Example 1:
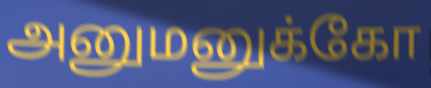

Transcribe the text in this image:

அனுமனுக்கோ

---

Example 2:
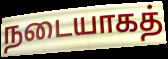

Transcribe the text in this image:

நடையாகத்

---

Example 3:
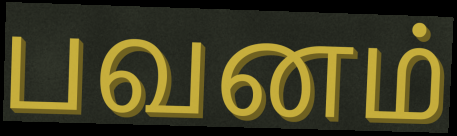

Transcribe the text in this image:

பவனம்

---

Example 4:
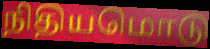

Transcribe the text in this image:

நிதியமொடு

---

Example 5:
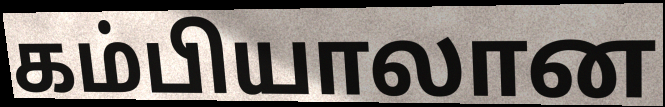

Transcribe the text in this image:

கம்பியாலான